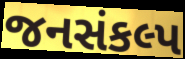
જનસંકલ્પ